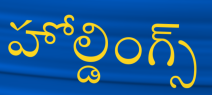
హోల్డింగ్స్